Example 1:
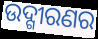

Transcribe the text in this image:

ଉଦ୍ଗୀରଣର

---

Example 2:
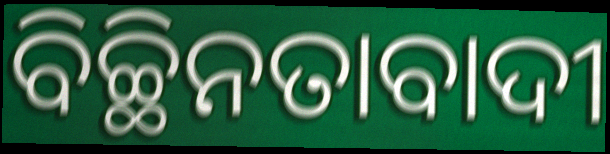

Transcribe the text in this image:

ବିଚ୍ଛିନତାବାଦୀ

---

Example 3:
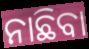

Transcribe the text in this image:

ନାଛିବା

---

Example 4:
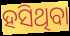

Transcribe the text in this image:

ହସିଥିବା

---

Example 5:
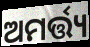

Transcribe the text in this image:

ଅମର୍ତ୍ତ୍ୟ